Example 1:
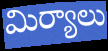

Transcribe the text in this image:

మిర్యాలు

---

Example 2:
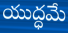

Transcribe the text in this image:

యుద్ధమే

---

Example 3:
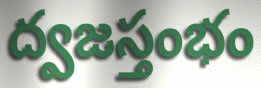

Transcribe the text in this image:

ద్వజస్తంభం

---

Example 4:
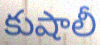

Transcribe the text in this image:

కుషాలీ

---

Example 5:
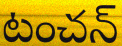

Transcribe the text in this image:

టంచన్